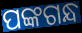
ପଙ୍କଗନ୍ଧ